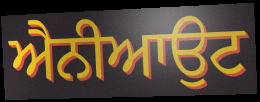
ਐਨੀਆਉਟ